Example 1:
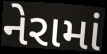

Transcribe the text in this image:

નેરામાં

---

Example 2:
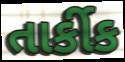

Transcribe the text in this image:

તાર્કીક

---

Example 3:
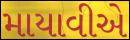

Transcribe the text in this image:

માયાવીએ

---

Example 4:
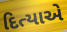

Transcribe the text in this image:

દિત્યાએ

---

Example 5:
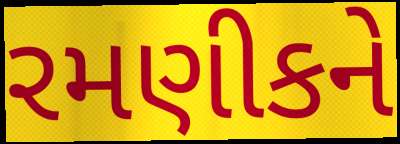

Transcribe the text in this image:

રમણીકને